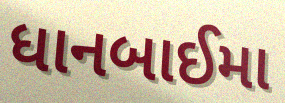
ધાનબાઈમા